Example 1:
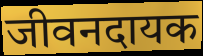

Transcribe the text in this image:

जीवनदायक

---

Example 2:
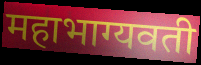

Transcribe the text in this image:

महाभाग्यवती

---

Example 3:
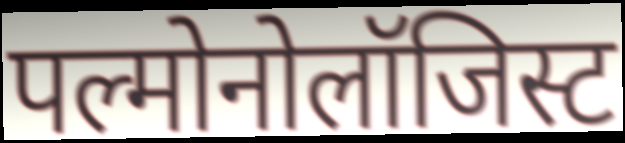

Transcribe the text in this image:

पल्मोनोलॉजिस्ट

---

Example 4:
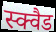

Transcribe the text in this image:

स्क्वैड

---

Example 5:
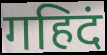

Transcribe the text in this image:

गहिदं